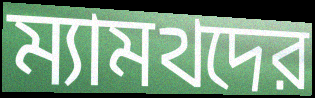
ম্যামথদের